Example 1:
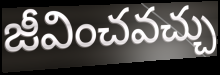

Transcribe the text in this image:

జీవించవచ్చు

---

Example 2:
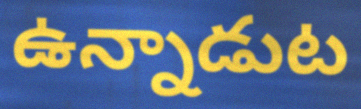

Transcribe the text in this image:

ఉన్నాడుట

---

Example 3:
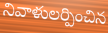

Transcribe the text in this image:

నివాళులర్పించిన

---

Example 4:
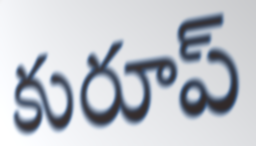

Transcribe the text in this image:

కురూప్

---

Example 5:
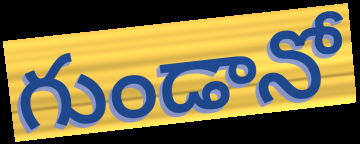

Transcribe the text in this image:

గుండానో